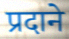
प्रदाने